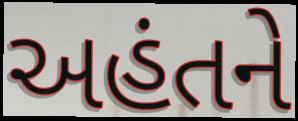
અહંતને